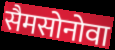
सैमसोनोवा